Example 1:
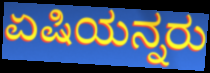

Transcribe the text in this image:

ಏಷಿಯನ್ನರು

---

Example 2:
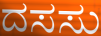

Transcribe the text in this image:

ದಸಸು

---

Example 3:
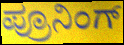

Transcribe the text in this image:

ಪ್ರೂನಿಂಗ್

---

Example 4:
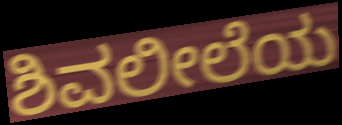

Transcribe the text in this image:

ಶಿವಲೀಲೆಯ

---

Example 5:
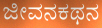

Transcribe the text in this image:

ಜೀವನಕಥನ